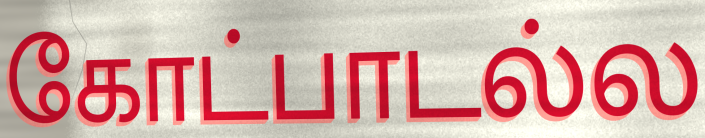
கோட்பாடல்ல